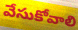
వేసుకోవాలి